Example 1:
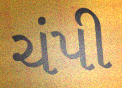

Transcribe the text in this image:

ચંપી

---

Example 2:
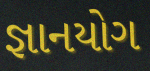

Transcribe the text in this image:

જ્ઞાનયોગ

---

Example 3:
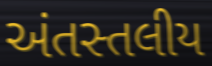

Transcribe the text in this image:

અંતસ્તલીય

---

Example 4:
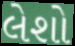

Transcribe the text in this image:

લેશો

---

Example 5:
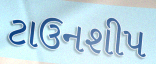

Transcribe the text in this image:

ટાઉનશીપ